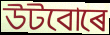
উটবোৰে